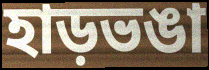
হাড়ভঙা